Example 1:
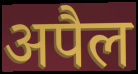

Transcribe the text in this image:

अपैल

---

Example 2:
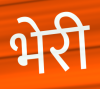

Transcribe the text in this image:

भेरी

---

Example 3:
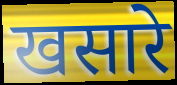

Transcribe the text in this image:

खसारे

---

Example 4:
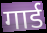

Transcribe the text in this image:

गार्ड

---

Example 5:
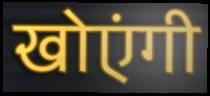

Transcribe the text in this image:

खोएंगी